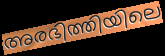
അരഭിത്തിയിലെ